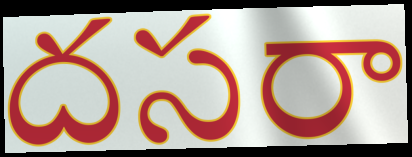
దసరా